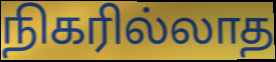
நிகரில்லாத